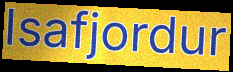
Isafjordur